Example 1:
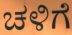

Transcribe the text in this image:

ಚಳಿಗೆ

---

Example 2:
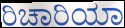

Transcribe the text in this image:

ರಿಚಾರಿಯಾ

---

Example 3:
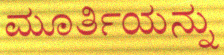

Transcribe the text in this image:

ಮೂರ್ತಿಯನ್ನು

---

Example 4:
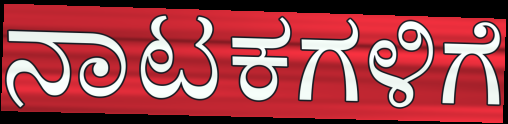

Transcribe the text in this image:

ನಾಟಕಗಳಿಗೆ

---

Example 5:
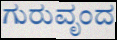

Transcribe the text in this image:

ಗುರುವೃಂದ